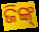
ଜିଙ୍କ୍